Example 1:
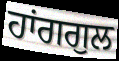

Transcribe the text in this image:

ਹਾਂਗਗੁਲ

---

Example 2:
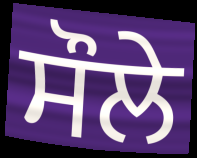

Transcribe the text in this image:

ਸੌਲੇ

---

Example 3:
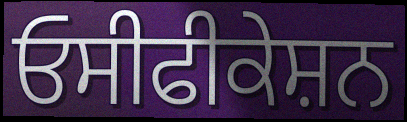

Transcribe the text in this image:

ਓਸੀਫੀਕੇਸ਼ਨ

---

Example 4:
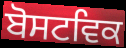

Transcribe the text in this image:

ਬੋਸਟਵਿਕ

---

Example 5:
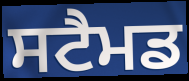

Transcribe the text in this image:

ਸਟੈਮਡ